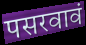
पसरवावं